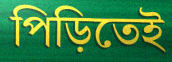
পিড়িতেই